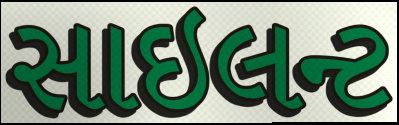
સાઇલન્ટ